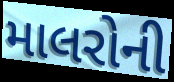
માલરોની